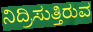
ನಿದ್ರಿಸುತ್ತಿರುವ